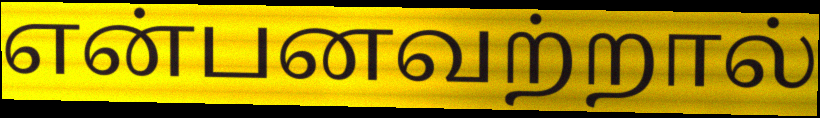
என்பனவற்றால்